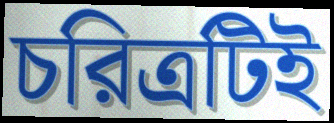
চরিত্রটিই